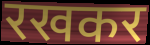
रखकर